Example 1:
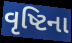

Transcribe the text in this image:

વૃષ્ટિના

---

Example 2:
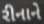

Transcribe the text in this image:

રીનાને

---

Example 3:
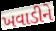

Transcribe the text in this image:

ખવાડીને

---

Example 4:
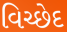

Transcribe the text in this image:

વિચ્છેદ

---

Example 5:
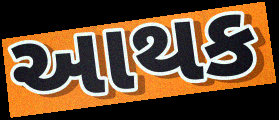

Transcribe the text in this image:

આથક